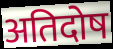
अतिदोष